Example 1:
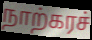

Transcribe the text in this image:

நாற்கரச்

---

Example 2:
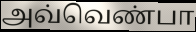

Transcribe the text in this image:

அவ்வெண்பா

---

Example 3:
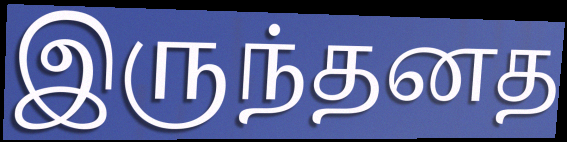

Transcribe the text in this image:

இருந்தனத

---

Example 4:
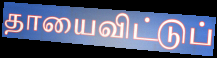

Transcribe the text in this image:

தாயைவிட்டுப்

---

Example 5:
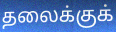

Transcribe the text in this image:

தலைக்குக்